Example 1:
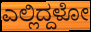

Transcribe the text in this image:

ಎಲ್ಲಿದ್ದಳೋ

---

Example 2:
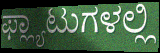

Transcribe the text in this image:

ಫ್ಲ್ಯಾಟುಗಳಲ್ಲಿ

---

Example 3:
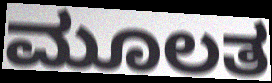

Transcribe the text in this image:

ಮೂಲತ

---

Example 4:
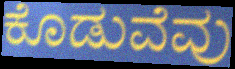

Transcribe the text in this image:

ಕೊಡುವೆವು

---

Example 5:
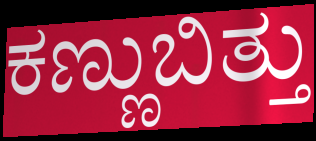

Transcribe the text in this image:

ಕಣ್ಣುಬಿತ್ತು